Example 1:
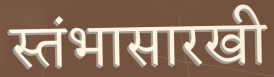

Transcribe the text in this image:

स्तंभासारखी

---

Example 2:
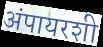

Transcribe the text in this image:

अंपायरशी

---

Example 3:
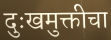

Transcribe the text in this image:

दुःखमुक्तीचा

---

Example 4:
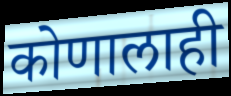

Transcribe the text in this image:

कोणालाही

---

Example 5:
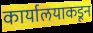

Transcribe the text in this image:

कार्यालयाकडून